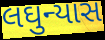
લઘુન્યાસ